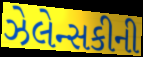
ઝેલેન્સકીની